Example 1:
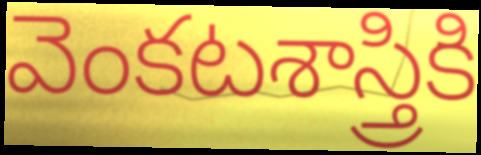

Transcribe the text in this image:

వెంకటశాస్త్రికి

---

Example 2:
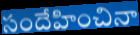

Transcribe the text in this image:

సందేహించినా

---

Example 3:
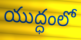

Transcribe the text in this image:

యుద్ధంలో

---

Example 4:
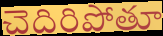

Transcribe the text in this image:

చెదిరిపోతూ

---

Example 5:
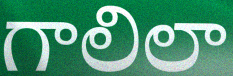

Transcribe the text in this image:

గాలిలా